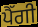
ਪੈੱਗੀ